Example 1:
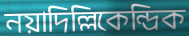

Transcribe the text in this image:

নয়াদিল্লিকেন্দ্রিক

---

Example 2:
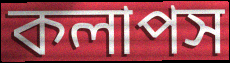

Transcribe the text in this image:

কলাপস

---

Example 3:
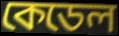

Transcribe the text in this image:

কেডেল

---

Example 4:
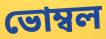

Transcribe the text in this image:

ভোম্বল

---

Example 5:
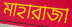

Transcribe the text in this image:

মাহারাজা